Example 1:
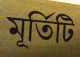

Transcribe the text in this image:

মূৰ্তিটি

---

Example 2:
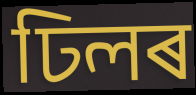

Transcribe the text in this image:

ঢিলৰ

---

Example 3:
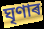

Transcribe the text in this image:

ঘৃণাৰ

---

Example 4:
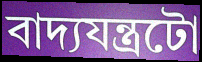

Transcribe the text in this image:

বাদ্যযন্ত্ৰটো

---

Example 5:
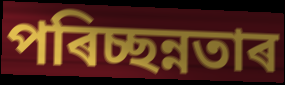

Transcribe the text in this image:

পৰিচ্ছন্নতাৰ